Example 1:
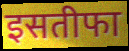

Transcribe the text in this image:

इसतीफा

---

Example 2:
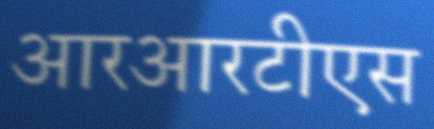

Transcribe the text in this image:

आरआरटीएस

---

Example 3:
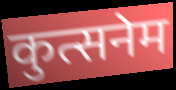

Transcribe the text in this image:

कुत्सनेम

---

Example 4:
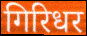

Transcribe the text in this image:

गिरिधर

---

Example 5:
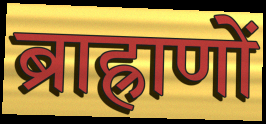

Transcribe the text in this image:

ब्राह्राणों